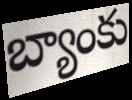
బ్యాంకు